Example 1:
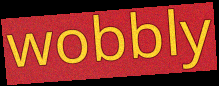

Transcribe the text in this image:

wobbly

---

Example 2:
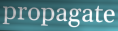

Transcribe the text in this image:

propagate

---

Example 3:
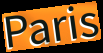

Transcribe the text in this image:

Paris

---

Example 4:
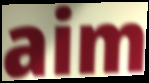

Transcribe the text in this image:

aim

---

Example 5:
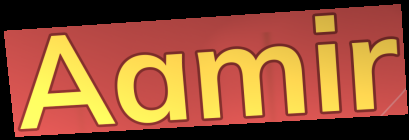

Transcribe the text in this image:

Aamir